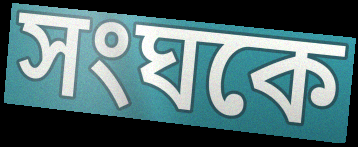
সংঘকে